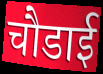
चौडाई